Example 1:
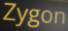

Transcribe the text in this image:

Zygon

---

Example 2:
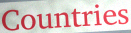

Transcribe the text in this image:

Countries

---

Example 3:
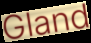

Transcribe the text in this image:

Gland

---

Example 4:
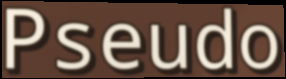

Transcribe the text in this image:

Pseudo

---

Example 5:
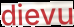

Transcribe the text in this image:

dievu